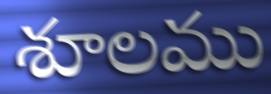
శూలము